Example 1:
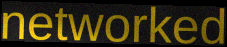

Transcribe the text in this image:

networked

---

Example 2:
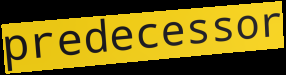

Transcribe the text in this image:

predecessor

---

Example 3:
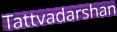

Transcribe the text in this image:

Tattvadarshan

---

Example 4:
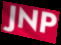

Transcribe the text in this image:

JNP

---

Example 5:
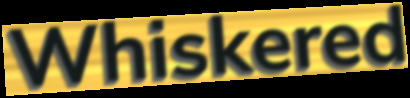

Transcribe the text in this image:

Whiskered